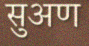
सुअण